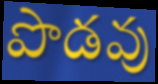
పొడవు